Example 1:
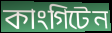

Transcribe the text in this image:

কাংগিটেন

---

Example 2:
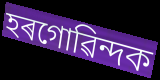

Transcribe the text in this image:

হৰগোৱিন্দক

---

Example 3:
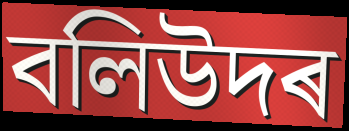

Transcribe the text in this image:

বলিউদৰ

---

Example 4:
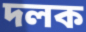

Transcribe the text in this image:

দলক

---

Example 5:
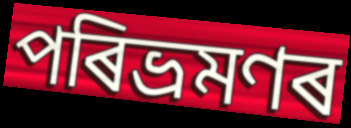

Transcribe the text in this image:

পৰিভ্ৰমণৰ